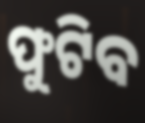
ଫୁଟିବ